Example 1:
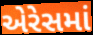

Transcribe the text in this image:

એરેસમાં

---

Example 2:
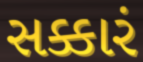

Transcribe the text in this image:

સક્કારં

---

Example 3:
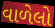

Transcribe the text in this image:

વાળેલો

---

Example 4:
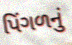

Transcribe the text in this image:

પિંગળનું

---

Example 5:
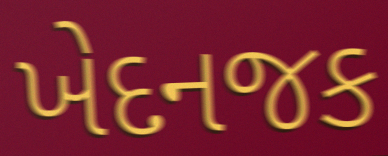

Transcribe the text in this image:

ખેદનજક